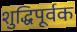
शुद्धिपूर्वक